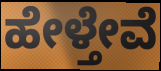
ಹೇಳ್ತೇವೆ